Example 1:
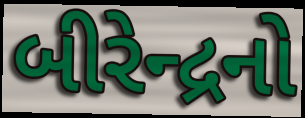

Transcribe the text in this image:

બીરેન્દ્રનો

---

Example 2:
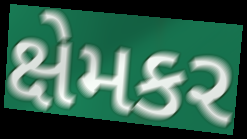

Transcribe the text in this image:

ક્ષેમકર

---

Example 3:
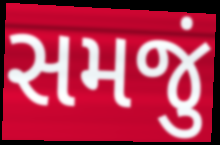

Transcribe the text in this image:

સમજું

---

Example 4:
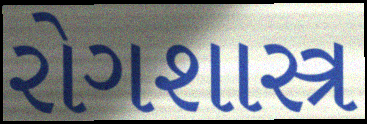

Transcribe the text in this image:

રોગશાસ્ત્ર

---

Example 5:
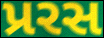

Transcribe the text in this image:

પ્રરસ